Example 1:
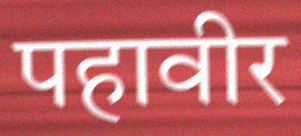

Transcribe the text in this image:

पहावीर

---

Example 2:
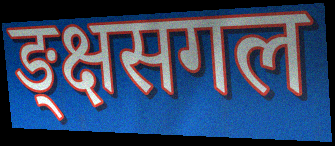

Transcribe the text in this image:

ङ्क्षसगल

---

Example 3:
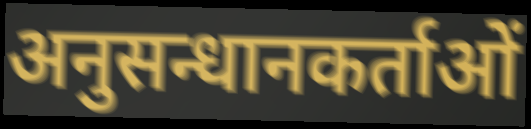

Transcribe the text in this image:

अनुसन्धानकर्ताओं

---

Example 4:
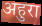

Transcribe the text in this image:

अहुरा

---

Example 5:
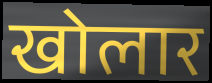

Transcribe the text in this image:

खोलार